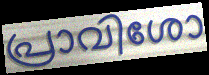
പ്രാവിശോ